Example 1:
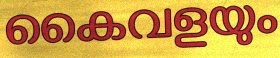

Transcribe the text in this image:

കൈവളയും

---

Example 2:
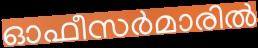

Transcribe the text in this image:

ഓഫീസർമാരിൽ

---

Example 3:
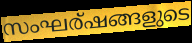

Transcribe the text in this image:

സംഘര്ഷങ്ങളുടെ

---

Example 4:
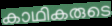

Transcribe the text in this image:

കാഥികരുടെ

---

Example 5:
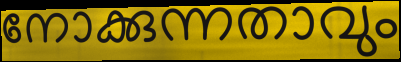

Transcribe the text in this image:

നോക്കുന്നതാവും